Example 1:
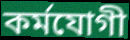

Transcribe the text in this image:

কর্মযোগী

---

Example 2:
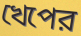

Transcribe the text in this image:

খেপের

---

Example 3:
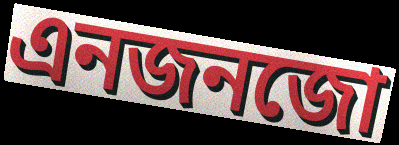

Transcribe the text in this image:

এনজনজো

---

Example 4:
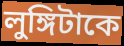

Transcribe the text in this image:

লুঙ্গিটাকে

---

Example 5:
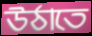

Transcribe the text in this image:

উঠাতে